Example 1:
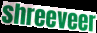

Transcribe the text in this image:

shreeveer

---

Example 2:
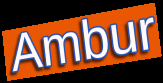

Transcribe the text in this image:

Ambur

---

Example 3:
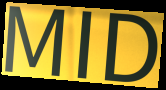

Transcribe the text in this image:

MID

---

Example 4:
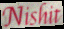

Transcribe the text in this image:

Nishit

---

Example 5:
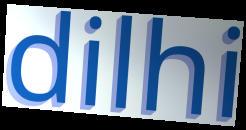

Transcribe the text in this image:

dilhi